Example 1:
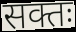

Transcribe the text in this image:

सक्तः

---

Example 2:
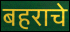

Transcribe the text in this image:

बहराचे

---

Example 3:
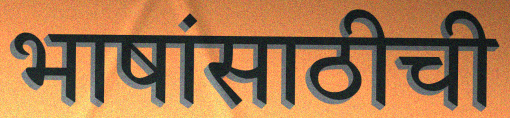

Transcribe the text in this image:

भाषांसाठीची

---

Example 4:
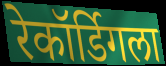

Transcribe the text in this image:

रेकॉर्डिगला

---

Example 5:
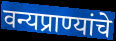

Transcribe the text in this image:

वन्यप्राण्यांचे